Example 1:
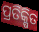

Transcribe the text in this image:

ପ୍ରତିକ୍ଷିତ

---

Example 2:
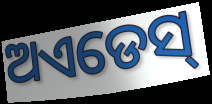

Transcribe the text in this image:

ଅଏଡେସ୍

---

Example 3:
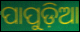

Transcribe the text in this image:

ପାପୁଡ଼ିଆ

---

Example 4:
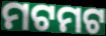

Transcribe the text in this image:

ମଟମଟ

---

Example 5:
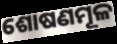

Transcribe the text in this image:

ଶୋଷଣମୂଳ